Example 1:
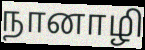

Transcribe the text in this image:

நானாழி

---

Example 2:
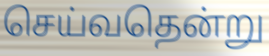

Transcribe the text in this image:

செய்வதென்று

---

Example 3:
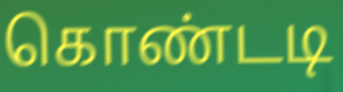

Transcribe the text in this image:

கொண்டடி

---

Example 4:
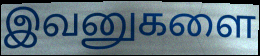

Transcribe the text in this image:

இவனுகளை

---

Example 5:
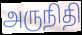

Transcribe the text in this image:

அருநிதி